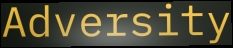
Adversity